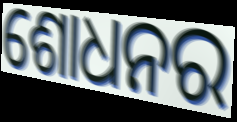
ଶୋଧନର